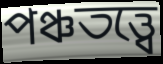
পঞ্চতত্ত্বে